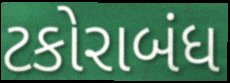
ટકોરાબંધ